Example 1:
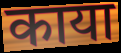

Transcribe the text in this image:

काया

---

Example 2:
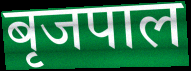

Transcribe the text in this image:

बृजपाल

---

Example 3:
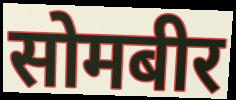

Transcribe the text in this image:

सोमबीर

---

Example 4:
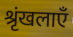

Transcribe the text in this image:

श्रृंखलाएँ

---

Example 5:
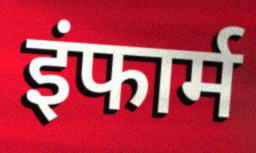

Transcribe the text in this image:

इंफार्म